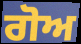
ਗੋਅ